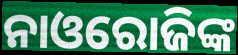
ନାଓରୋଜିଙ୍କ